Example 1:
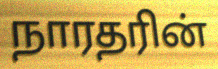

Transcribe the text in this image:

நாரதரின்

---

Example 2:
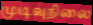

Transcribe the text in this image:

முடிவுநிலை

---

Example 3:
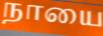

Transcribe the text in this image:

நாயை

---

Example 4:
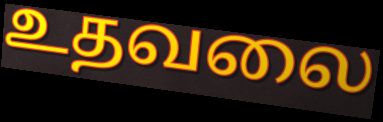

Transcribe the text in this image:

உதவலை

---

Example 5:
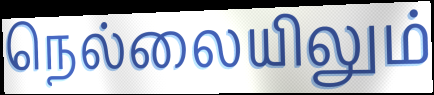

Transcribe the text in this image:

நெல்லையிலும்